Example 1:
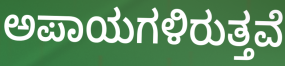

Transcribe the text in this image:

ಅಪಾಯಗಳಿರುತ್ತವೆ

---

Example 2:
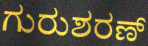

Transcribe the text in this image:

ಗುರುಶರಣ್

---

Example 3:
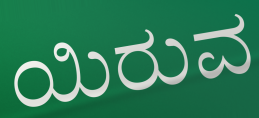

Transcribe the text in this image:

ಯಿರುವ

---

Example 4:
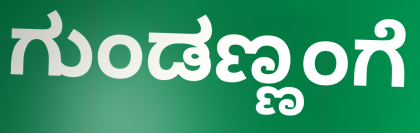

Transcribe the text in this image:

ಗುಂಡಣ್ಣಂಗೆ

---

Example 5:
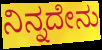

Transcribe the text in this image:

ನಿನ್ನದೇನು